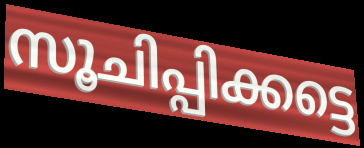
സൂചിപ്പിക്കട്ടെ